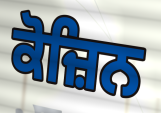
ਕੋਜ਼ਿਨ